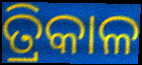
ତ୍ରିକାଳ